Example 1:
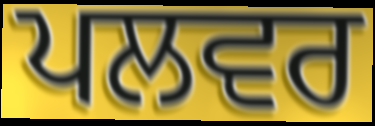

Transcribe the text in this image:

ਪਲਵਰ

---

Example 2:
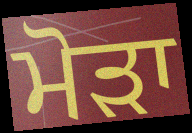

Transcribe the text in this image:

ਮੋੜਾ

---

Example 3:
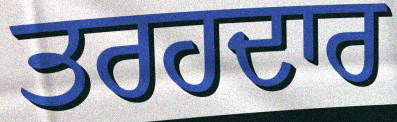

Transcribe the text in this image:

ਤਰਹਦਾਰ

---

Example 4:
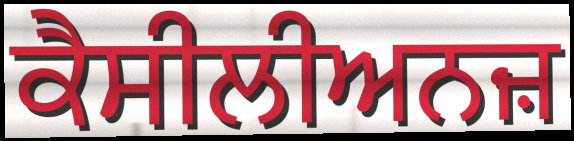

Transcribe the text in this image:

ਕੈਸੀਲੀਅਨਜ਼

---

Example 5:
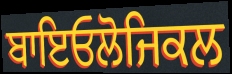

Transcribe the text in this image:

ਬਾਇਓਲੋਜਿਕਲ